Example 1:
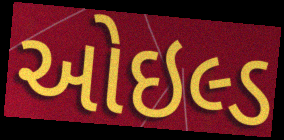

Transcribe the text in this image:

ઓઇલ્ડ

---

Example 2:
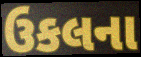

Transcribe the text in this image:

ઉકલના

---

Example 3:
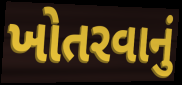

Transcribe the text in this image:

ખોતરવાનું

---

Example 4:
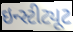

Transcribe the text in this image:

ઇન્સ્ટીટ્યૂટ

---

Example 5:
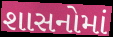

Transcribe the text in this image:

શાસનોમાં